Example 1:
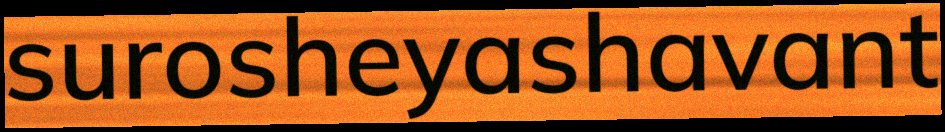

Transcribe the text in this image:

surosheyashavant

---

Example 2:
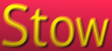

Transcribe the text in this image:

Stow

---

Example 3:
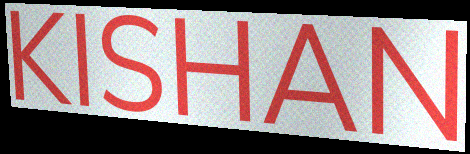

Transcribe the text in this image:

KISHAN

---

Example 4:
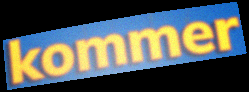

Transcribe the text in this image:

kommer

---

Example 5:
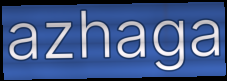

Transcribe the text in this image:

azhaga